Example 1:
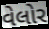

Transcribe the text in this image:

વેલોર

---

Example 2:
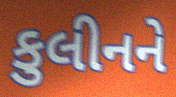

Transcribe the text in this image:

કુલીનને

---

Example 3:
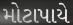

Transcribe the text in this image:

મોટાપાયે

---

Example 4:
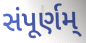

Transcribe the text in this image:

સંપૂર્ણમ્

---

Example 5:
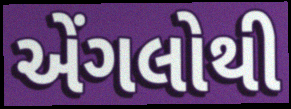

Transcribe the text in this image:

એંગલોથી